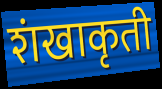
शंखाकृती